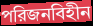
পরিজনবিহীন